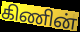
கிணின்